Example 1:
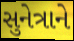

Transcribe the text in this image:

સુનેત્રાને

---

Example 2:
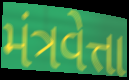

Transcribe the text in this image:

મંત્રવેત્તા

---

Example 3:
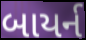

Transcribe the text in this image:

બાયર્ન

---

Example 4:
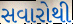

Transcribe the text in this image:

સવારોથી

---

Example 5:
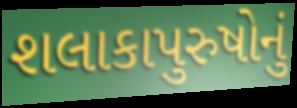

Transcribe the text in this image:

શલાકાપુરુષોનું